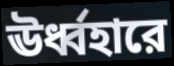
ঊর্ধ্বহারে